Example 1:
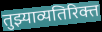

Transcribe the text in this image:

तुझ्याव्यतिरिक्त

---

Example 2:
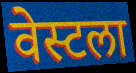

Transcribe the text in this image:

वेस्टला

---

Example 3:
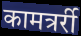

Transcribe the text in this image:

कामत्रर्री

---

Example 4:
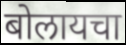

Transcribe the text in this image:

बोलायचा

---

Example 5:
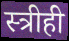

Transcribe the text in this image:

स्त्रीही